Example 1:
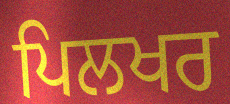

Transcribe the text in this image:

ਪਿਲਖਰ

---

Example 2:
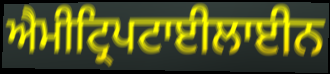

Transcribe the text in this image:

ਐਮੀਟ੍ਰਿਪਟਾਈਲਾਈਨ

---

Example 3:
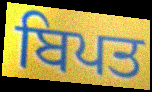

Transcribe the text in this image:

ਬਿਪਤ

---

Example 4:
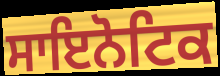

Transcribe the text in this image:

ਸਾਇਨੋਟਿਕ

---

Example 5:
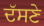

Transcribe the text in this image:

ਦੱਸਣੇ